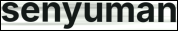
senyuman